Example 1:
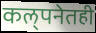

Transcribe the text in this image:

कल्पनेतही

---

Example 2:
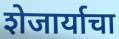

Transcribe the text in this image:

शेजार्याचा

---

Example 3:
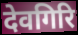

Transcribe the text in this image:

देवगिरि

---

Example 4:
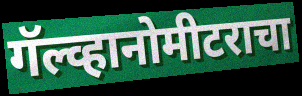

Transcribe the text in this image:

गॅल्व्हानोमीटराचा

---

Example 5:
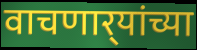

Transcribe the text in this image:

वाचणार्‍यांच्या